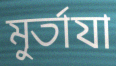
মুর্তাযা